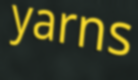
yarns